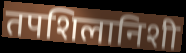
तपशिलानिशी